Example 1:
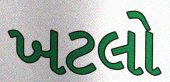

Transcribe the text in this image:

ખટલો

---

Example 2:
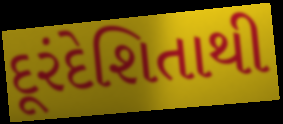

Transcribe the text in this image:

દૂરંદેશિતાથી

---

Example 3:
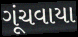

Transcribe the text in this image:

ગૂંચવાયા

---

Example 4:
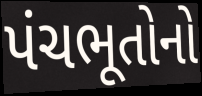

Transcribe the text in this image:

પંચભૂતોનો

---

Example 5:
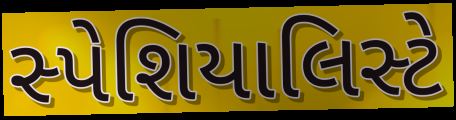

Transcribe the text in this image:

સ્પેશિયાલિસ્ટે